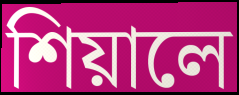
শিয়ালে